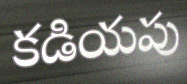
కడియపు